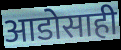
आडोसाही